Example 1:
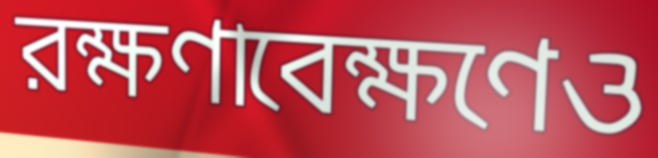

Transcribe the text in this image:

রক্ষণাবেক্ষণেও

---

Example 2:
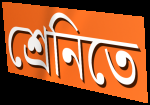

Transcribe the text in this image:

শ্রেনিতে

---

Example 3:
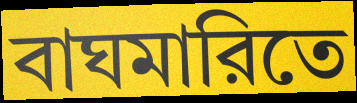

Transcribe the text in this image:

বাঘমারিতে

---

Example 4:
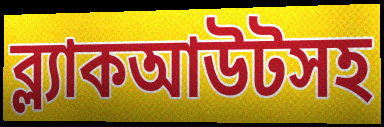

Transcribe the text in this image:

ব্ল্যাকআউটসহ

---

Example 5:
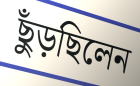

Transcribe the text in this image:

ছুঁড়ছিলেন